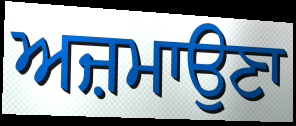
ਅਜ਼ਮਾਉਣਾ